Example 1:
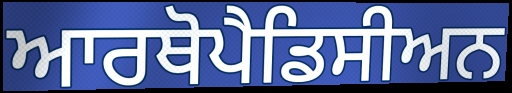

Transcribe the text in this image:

ਆਰਥੋਪੈਡਿਸੀਅਨ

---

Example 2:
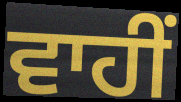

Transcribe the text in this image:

ਵਾਹੀਂ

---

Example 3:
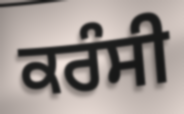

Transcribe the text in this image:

ਕਰੰਸੀ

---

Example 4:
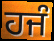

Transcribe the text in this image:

ਹਜੰ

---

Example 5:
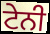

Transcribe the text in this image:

ਟੇਨੀ